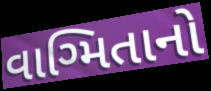
વાગ્મિતાનો